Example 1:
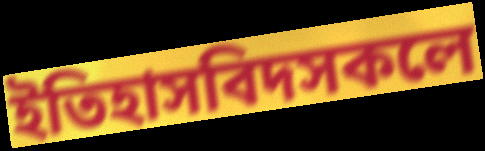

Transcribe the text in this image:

ইতিহাসবিদসকলে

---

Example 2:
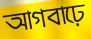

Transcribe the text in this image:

আগবাঢ়ে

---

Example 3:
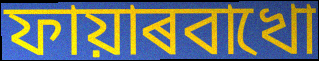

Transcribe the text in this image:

ফায়াৰবাখো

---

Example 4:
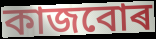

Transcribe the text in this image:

কাজবোৰ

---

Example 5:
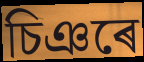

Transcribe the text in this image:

চিঞৰে